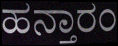
ಹನ್ತಾರಂ